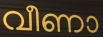
വീണാ